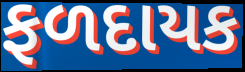
ફળદાયક